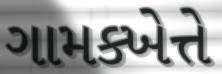
ગામક્ખેત્તે